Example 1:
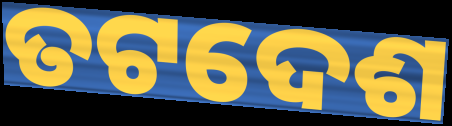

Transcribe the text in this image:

ତଟଦେଶ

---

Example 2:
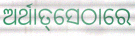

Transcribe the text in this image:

ଅର୍ଥାତ୍‌ସେଠାରେ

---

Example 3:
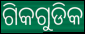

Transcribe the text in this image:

ଗିକଗୁଡିକ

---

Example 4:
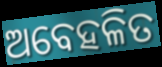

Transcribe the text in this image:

ଅବେହଳିତ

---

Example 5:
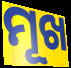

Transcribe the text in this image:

ମୂଖ